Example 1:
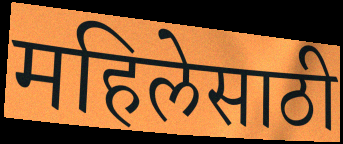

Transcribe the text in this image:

महिलेसाठी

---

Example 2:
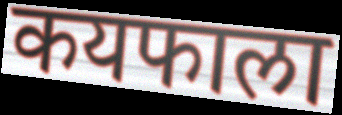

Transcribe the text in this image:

कयफाला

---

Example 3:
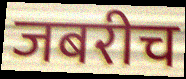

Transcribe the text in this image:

जबरीच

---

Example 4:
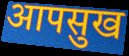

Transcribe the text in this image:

आपसुख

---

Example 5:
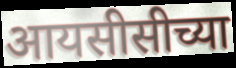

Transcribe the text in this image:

आयसीसीच्या